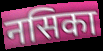
नसिका